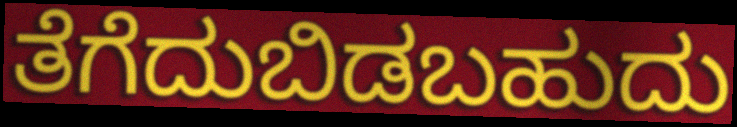
ತೆಗೆದುಬಿಡಬಹುದು